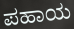
ಪಹಾಯ